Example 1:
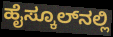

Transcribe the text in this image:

ಹೈಸ್ಕೂಲ್‍ನಲ್ಲಿ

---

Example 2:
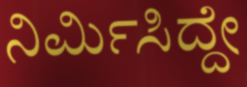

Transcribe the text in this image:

ನಿರ್ಮಿಸಿದ್ದೇ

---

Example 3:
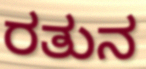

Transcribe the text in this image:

ರತುನ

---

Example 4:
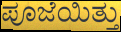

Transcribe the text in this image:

ಪೂಜೆಯಿತ್ತು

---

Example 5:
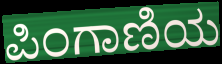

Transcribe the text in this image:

ಪಿಂಗಾಣಿಯ